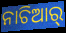
ନାଚିଆର୍